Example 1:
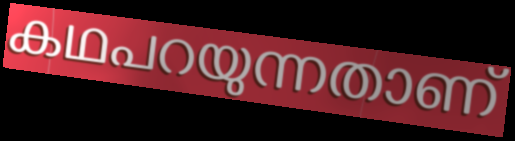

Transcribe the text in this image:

കഥപറയുന്നതാണ്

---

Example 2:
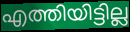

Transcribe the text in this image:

എത്തിയിട്ടില്ല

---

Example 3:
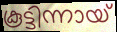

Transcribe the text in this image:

കൂട്ടിന്നായ്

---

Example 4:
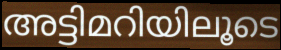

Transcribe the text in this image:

അട്ടിമറിയിലൂടെ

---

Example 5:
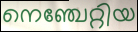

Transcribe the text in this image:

നെഞ്ചേറ്റിയ